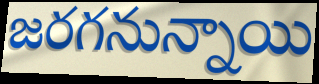
జరగనున్నాయి